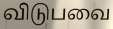
விடுபவை